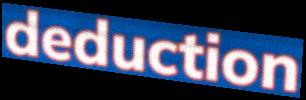
deduction